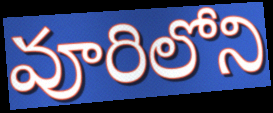
వూరిలోని